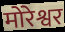
मोरेश्वर